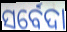
ସର୍ବେଦା